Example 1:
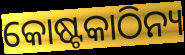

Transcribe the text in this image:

କୋଷ୍ଟକାଠିନ୍ୟ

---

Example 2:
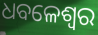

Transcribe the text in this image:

ଧବଳେଶ୍ଵର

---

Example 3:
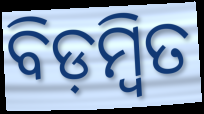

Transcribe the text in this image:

ବିଡ଼ମ୍ବିତ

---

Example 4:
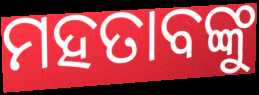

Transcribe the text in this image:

ମହତାବଙ୍କୁ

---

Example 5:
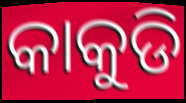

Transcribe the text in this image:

କାକୁଡି